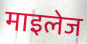
माइलेज